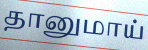
தானுமாய்